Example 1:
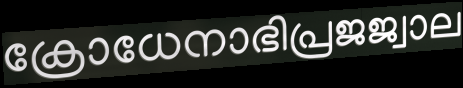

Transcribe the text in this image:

ക്രോധേനാഭിപ്രജജ്വാല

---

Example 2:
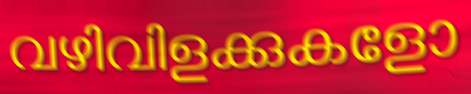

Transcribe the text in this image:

വഴിവിളക്കുകളോ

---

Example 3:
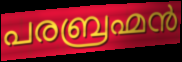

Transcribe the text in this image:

പരബ്രഹ്മൻ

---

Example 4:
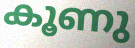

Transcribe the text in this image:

കൂണു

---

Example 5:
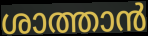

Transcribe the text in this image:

ശാത്താൻ